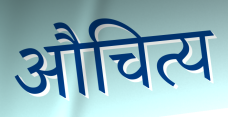
औचित्य